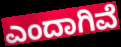
ಎಂದಾಗಿವೆ